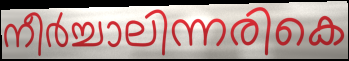
നീർച്ചാലിന്നരികെ